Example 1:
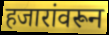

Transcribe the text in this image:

हजारांवरून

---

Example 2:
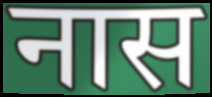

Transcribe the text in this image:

नास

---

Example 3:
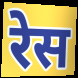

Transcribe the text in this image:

रेस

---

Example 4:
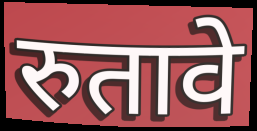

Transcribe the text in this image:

रुतावे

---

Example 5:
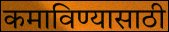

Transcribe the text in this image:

कमाविण्यासाठी